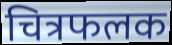
चित्रफलक